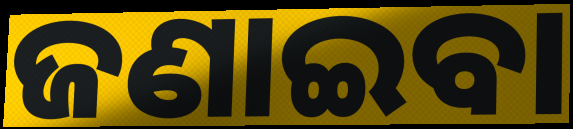
ଜଣାଇବା